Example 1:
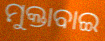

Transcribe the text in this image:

ମୁକ୍ତାବାଇ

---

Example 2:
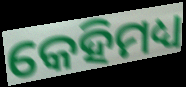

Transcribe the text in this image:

କେହିମଧ୍ୟ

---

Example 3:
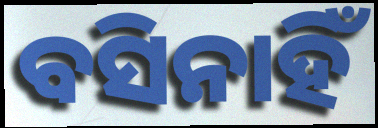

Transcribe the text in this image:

ବସିନାହିଁ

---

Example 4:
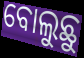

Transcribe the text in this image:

ବୋଲୁଛୁ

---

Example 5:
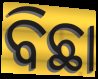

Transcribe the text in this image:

ବିଛା